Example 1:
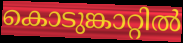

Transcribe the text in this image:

കൊടുങ്കാറ്റിൽ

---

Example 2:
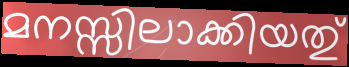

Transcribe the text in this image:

മനസ്സിലാക്കിയതു്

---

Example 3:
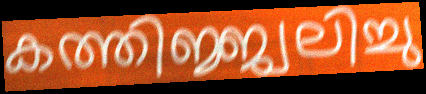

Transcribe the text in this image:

കത്തിജ്ജ്വലിച്ചു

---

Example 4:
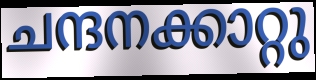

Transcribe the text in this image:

ചന്ദനക്കാറ്റു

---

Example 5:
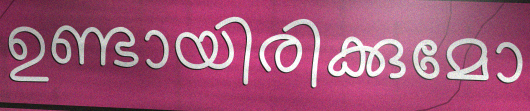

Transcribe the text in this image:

ഉണ്ടായിരിക്കുമോ